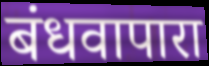
बंधवापारा